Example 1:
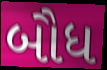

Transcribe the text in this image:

બૌધ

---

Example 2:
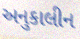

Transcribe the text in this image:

અનુકાલીન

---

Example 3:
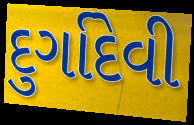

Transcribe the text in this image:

દુર્ગાદેવી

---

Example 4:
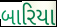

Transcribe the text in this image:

બારિયા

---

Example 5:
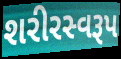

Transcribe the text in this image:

શરીરસ્વરૂપ